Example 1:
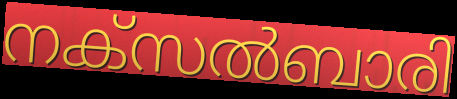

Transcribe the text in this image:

നക്സൽബാരി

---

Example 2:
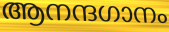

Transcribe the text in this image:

ആനന്ദഗാനം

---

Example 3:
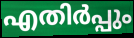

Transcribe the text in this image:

എതിർപ്പും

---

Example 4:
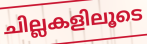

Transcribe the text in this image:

ചില്ലകളിലൂടെ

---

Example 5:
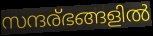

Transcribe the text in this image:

സന്ദര്ഭങ്ങളിൽ